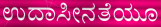
ಉದಾಸೀನತೆಯೂ